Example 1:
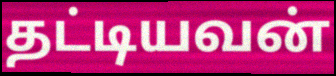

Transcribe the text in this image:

தட்டியவன்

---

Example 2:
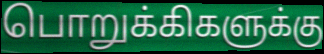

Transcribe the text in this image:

பொறுக்கிகளுக்கு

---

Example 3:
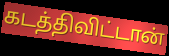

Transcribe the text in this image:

கடத்திவிட்டான்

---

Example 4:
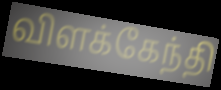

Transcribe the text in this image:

விளக்கேந்தி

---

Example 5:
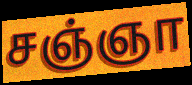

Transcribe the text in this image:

சஞ்ஞா